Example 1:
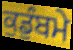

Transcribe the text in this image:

ਕੁਡੁੰਬਮੇ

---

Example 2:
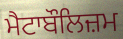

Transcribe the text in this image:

ਮੈਟਾਬੌਲਿਜ਼ਮ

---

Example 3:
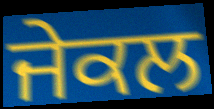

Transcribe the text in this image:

ਜੇਕਲ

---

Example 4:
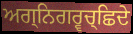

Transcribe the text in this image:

ਅਗ੍ਨਿਗਰ੍ਵਚ੍ਛਿਦੇ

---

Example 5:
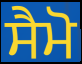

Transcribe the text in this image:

ਸੈਮੋ